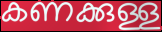
കണക്കുള്ള